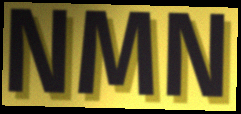
NMN